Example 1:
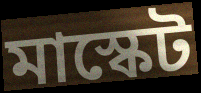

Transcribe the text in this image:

মাস্কেট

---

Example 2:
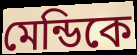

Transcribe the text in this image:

মেন্ডিকে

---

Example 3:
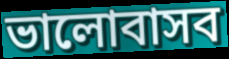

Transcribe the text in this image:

ভালোবাসব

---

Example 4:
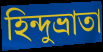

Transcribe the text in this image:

হিন্দুভ্রাতা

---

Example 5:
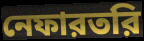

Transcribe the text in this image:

নেফারতরি